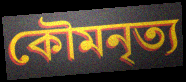
কৌমনৃত্য